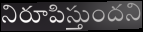
నిరూపిస్తుందని